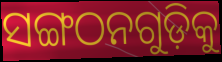
ସଙ୍ଗଠନଗୁଡ଼ିକୁ